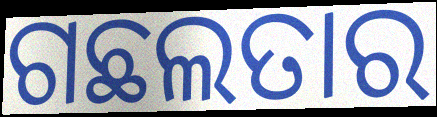
ଗଛଲତାର